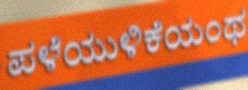
ಪಳೆಯುಳಿಕೆಯಂಥ